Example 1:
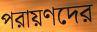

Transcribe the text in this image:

পরায়ণদের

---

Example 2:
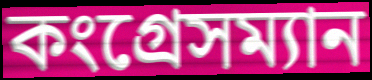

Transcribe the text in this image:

কংগ্রেসম্যান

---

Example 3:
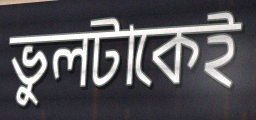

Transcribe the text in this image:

ভুলটাকেই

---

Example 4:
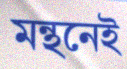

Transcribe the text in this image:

মন্থনেই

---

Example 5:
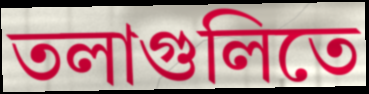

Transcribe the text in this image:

তলাগুলিতে